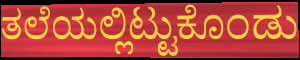
ತಲೆಯಲ್ಲಿಟ್ಟುಕೊಂಡು